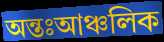
অন্তঃআঞ্চলিক